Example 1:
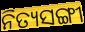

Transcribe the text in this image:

ନିତ୍ୟସଙ୍ଗୀ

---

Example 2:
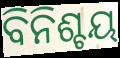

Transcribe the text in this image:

ବିନିଶ୍ଚୟ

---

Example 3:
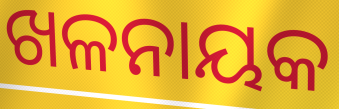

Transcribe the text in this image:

ଖଳନାୟକ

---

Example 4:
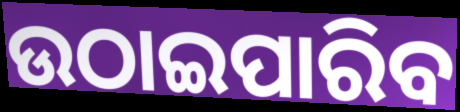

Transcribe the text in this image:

ଉଠାଇପାରିବ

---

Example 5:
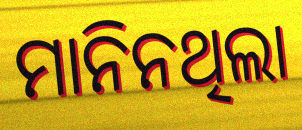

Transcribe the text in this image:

ମାନିନଥିଲା